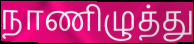
நாணிழுத்து